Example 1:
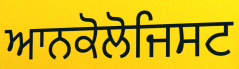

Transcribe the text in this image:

ਆਨਕੋਲੋਜਿਸਟ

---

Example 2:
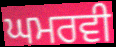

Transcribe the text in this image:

ਘਮਰਵੀ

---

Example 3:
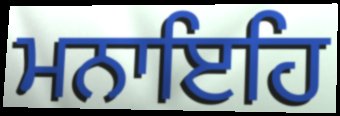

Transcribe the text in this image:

ਮਨਾਇਹਿ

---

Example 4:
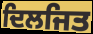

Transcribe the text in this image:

ਦਿਲਜਿਤ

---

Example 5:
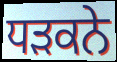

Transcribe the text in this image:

ਧਡ਼ਕਨੇ